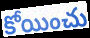
కోయించు